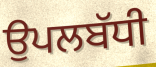
ਉਪਲਬੱਧੀ